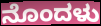
ನೊಂದಳು